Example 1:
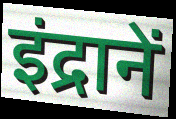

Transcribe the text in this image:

इंद्रानें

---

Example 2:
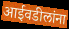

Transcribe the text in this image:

आईवडीलांना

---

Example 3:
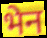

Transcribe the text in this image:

भेन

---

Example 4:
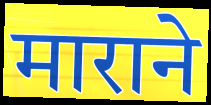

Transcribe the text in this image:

माराने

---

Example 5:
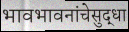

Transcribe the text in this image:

भावभावनांचेसुद्धा